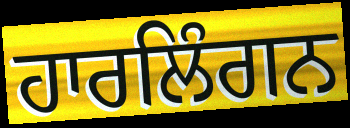
ਹਾਰਲਿੰਗਨ